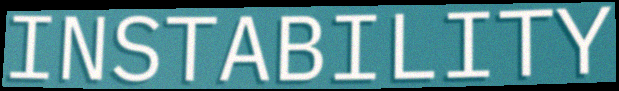
INSTABILITY